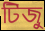
টিজু